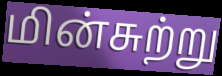
மின்சுற்று